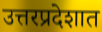
उत्तरप्रदेशात